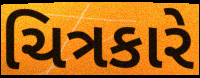
ચિત્રકારે